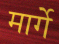
मार्गे